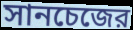
সানচেজের